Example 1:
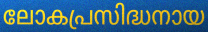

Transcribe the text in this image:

ലോകപ്രസിദ്ധനായ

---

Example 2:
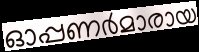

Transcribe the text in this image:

ഓപ്പണർമാരായ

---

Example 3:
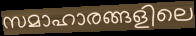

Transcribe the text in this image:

സമാഹാരങ്ങളിലെ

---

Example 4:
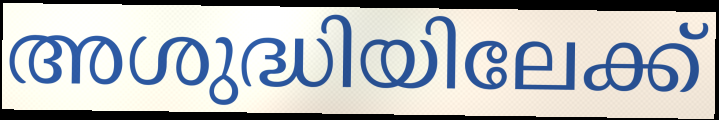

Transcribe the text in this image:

അശുദ്ധിയിലേക്ക്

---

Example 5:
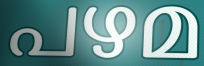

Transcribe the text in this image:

പഴമ